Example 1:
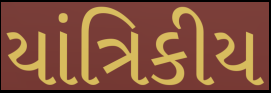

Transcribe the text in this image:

યાંત્રિકીય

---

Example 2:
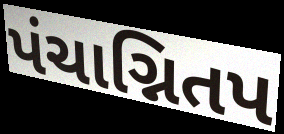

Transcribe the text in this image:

પંચાગ્નિતપ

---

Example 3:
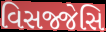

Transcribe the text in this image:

વિસજ્જેસિ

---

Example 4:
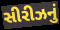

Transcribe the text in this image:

સીરીઝનું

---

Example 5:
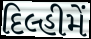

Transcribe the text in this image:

દિલ્હીમેં